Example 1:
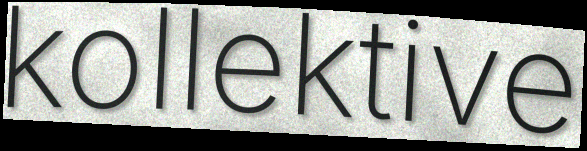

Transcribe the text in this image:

kollektive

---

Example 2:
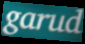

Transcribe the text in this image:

garud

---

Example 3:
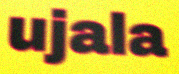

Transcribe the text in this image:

ujala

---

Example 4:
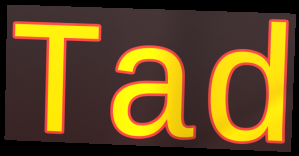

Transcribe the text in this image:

Tad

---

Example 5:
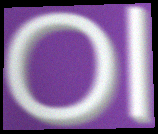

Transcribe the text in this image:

Ol